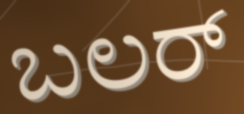
ಬಲರ್